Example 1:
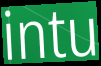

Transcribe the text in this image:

intu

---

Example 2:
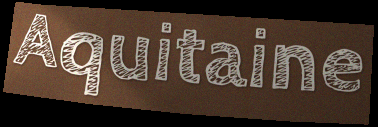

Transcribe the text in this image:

Aquitaine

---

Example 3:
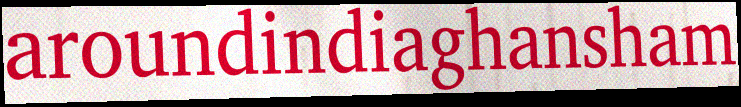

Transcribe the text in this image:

aroundindiaghansham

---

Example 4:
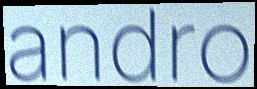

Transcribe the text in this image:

andro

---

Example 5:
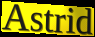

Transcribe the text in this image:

Astrid